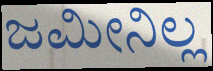
ಜಮೀನಿಲ್ಲ